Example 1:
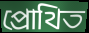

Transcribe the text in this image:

প্রোথিত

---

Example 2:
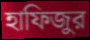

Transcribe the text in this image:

হাফিজুর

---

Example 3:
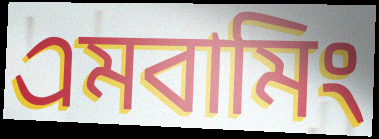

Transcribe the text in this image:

এমবামিং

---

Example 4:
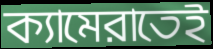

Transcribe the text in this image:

ক্যামেরাতেই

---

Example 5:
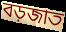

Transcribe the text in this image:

বড়জাত